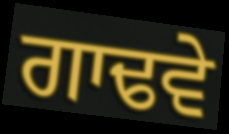
ਗਾਢਵੇ